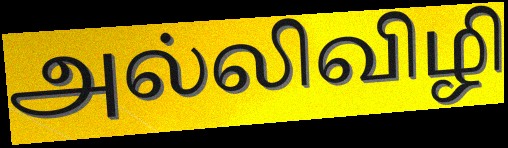
அல்லிவிழி